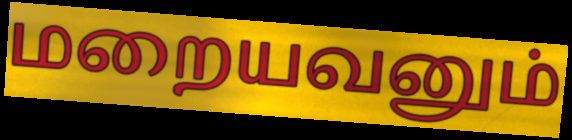
மறையவனும்